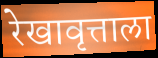
रेखावृत्ताला